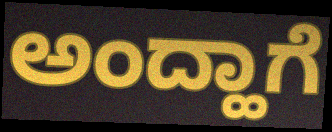
ಅಂದ್ಹಾಗೆ